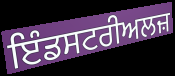
ਇੰਡਸਟਰੀਅਲਜ਼